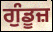
ਗੁੰਡੂਜ਼